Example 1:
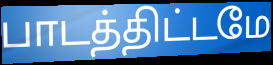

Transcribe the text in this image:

பாடத்திட்டமே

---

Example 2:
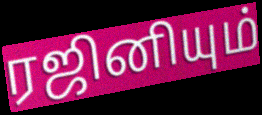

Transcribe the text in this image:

ரஜினியும்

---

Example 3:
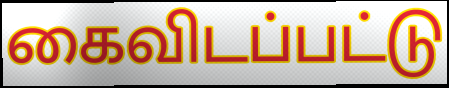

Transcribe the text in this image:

கைவிடப்பட்டு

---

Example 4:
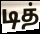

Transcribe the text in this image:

டித்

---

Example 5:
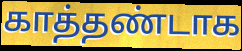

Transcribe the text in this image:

காத்தண்டாக